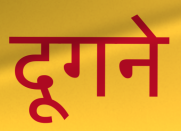
दूगने